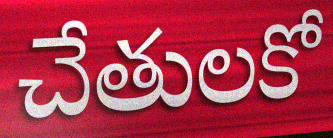
చేతులకో